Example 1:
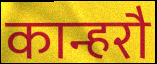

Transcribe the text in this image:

कान्हरौ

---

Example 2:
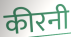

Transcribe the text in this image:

कीरनी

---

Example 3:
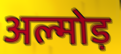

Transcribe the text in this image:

अल्मोड़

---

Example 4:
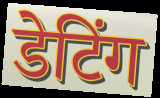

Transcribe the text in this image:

डेटिंग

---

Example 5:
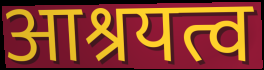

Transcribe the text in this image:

आश्रयत्व